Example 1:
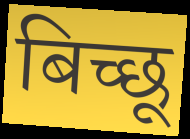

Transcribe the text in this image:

बिच्छू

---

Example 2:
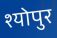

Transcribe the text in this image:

श्योपुर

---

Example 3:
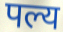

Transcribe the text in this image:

पल्य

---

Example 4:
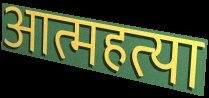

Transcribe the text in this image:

आत्‍महत्‍या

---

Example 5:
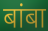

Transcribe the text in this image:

बांबा